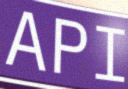
API